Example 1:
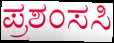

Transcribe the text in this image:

ಪ್ರಶಂಸಸಿ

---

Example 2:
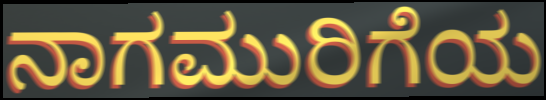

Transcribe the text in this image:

ನಾಗಮುರಿಗೆಯ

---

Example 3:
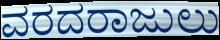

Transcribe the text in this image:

ವರದರಾಜುಲು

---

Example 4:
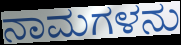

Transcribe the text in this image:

ನಾಮಗಳನು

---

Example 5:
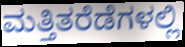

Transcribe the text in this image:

ಮತ್ತಿತರೆಡೆಗಳಲ್ಲಿ